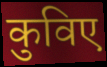
कुविए